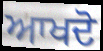
ਆਖਦੋ